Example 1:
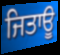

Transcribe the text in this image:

ਜਿਤਾਊ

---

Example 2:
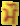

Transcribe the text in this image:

ਮੌ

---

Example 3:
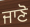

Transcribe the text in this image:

ਜਾਣੋ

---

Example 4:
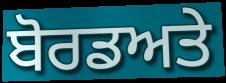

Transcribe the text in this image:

ਬੋਰਡਅਤੇ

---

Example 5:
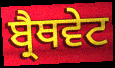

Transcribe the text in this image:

ਬ੍ਰੈਥਵੇਟ